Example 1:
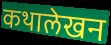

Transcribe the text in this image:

कथालेखन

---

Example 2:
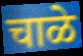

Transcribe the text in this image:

चाळे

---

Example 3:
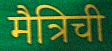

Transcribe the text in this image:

मैत्रिची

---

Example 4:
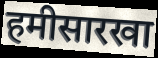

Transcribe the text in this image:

हमीसारखा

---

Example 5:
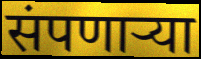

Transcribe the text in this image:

संपणार्‍या